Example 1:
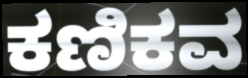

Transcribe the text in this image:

ಕಣಿಕವ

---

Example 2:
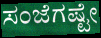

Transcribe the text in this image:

ಸಂಜೆಗಷ್ಟೇ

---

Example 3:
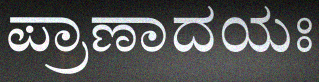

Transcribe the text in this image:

ಪ್ರಾಣಾದಯಃ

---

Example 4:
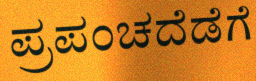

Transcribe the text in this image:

ಪ್ರಪಂಚದೆಡೆಗೆ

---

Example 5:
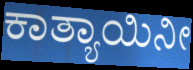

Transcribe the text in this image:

ಕಾತ್ಯಾಯಿನೀ